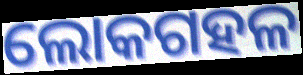
ଲୋକଗହଳ